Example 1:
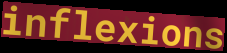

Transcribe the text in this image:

inflexions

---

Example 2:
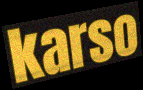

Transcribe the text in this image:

karso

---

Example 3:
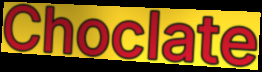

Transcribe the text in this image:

Choclate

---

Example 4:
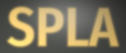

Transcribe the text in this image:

SPLA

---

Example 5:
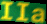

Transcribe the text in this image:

IIa